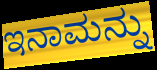
ಇನಾಮನ್ನು